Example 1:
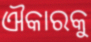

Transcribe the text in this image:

ଐକାରକୁ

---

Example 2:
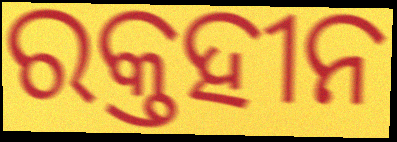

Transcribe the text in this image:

ରକ୍ତହୀନ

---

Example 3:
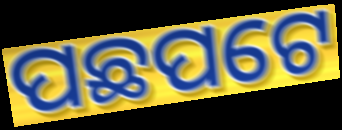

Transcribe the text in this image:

ପଛପଟେ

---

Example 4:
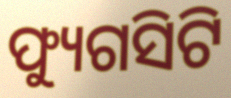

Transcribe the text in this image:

ଫ୍ୟୁଗସିଟି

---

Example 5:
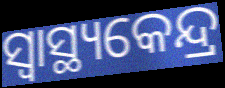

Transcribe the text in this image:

ସ୍ବାସ୍ଥ୍ୟକେନ୍ଦ୍ର